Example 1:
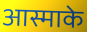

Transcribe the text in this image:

आस्माके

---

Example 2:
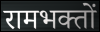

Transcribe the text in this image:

रामभक्तों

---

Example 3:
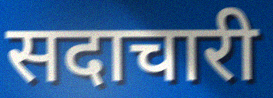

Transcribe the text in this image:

सदाचारी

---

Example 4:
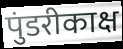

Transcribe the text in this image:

पुंडरीकाक्ष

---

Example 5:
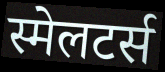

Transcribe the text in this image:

स्मेलटर्स